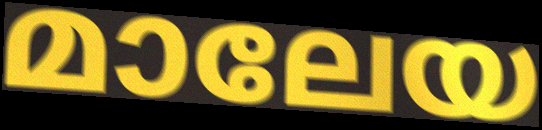
മാലേയ